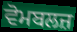
ਵੋਮਬਲਜ਼